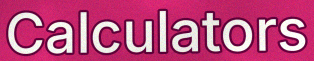
Calculators